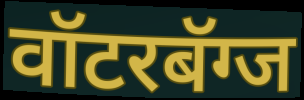
वॉटरबॅग्ज